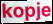
kopje